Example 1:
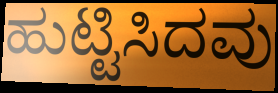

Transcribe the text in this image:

ಹುಟ್ಟಿಸಿದವು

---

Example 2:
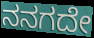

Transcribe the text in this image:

ನನಗದೇ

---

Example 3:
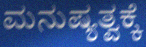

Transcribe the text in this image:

ಮನುಷ್ಯತ್ವಕ್ಕೆ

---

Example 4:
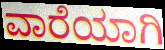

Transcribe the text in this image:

ವಾರೆಯಾಗಿ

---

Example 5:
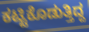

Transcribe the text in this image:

ಕಟ್ಟಿಕೊಡುತ್ತಿದ್ದ